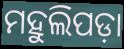
ମହୁଲିପଡ଼ା